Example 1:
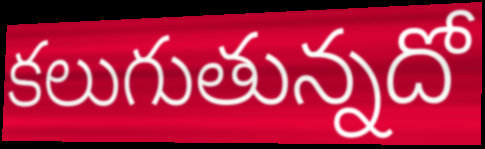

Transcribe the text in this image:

కలుగుతున్నదో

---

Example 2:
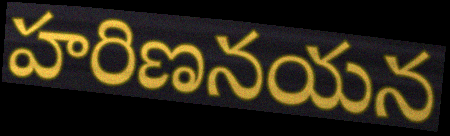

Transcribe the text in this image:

హరిణనయన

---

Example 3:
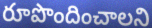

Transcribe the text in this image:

రూపొందించాలని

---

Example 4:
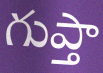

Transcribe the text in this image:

గుప్తా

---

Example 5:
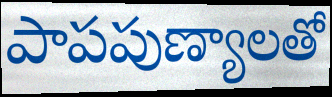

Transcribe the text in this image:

పాపపుణ్యాలతో